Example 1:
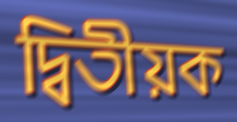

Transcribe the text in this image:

দ্বিতীয়ক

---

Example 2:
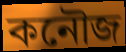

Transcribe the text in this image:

কনৌজ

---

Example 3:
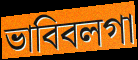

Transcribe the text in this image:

ভাবিবলগা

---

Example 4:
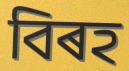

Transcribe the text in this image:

বিৰহ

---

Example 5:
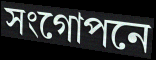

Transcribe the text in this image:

সংগোপনে